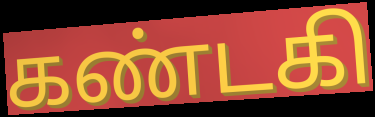
கண்டகி